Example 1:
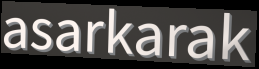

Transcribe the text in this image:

asarkarak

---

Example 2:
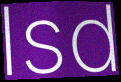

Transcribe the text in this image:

lsd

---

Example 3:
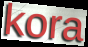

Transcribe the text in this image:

kora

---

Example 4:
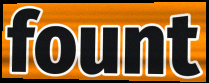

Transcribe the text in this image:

fount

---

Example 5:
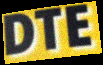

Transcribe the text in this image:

DTE